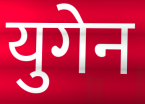
युगेन